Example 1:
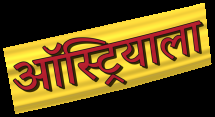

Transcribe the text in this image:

ऑस्ट्रियाला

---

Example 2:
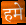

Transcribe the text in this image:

हमे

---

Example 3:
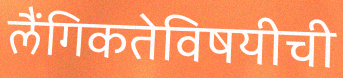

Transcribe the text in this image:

लैंगिकतेविषयीची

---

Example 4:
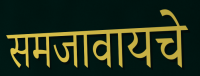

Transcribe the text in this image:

समजावायचे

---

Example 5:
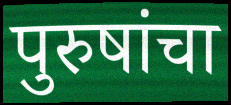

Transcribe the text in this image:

पुरुषांचा